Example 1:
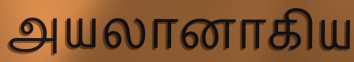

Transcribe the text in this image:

அயலானாகிய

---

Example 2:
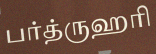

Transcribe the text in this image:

பர்த்ருஹரி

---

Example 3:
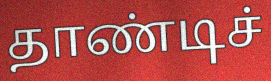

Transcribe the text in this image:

தாண்டிச்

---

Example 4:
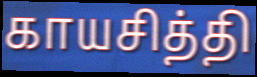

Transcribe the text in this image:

காயசித்தி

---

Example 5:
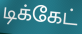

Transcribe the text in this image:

டிக்கேட்